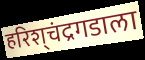
हरिश्चंद्रगडाला